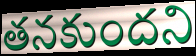
తనకుందని